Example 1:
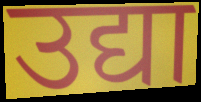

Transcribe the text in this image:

उद्या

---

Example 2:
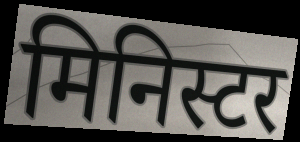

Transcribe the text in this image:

मिनिस्टर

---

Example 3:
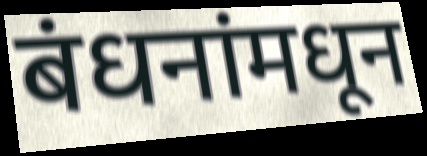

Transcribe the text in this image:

बंधनांमधून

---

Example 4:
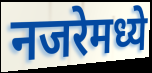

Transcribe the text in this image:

नजरेमध्ये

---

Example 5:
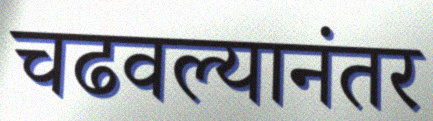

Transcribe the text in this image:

चढवल्यानंतर